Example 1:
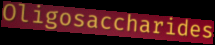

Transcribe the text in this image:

Oligosaccharides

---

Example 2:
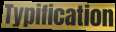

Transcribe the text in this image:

Typification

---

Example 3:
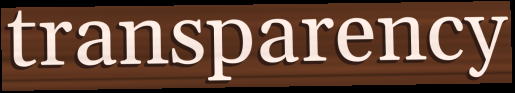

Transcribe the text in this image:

transparency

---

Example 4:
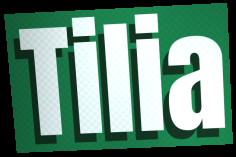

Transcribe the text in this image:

Tilia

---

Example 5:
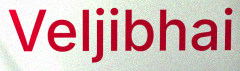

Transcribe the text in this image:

Veljibhai